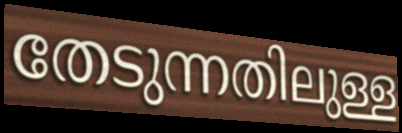
തേടുന്നതിലുള്ള